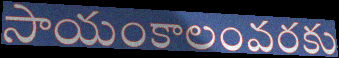
సాయంకాలంవరకు